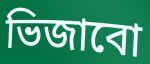
ভিজাবো